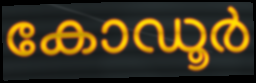
കോഡൂർ